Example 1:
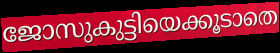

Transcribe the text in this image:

ജോസുകുട്ടിയെക്കൂടാതെ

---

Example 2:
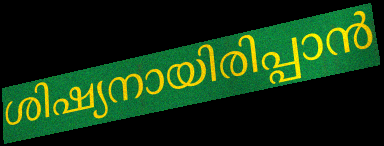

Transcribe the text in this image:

ശിഷ്യനായിരിപ്പാൻ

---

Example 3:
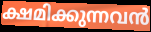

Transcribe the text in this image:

ക്ഷമിക്കുന്നവൻ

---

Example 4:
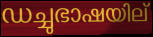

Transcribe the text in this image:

ഡച്ചുഭാഷയില്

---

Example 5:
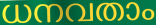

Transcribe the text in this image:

ധനവതാം